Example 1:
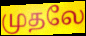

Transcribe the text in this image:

முதலே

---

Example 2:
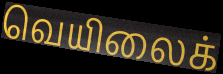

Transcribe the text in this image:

வெயிலைக்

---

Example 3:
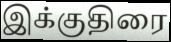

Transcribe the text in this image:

இக்குதிரை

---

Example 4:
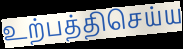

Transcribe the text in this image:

உற்பத்திசெய்ய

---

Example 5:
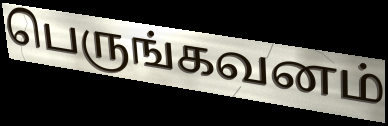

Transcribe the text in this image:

பெருங்கவனம்